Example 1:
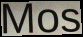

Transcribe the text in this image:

Mos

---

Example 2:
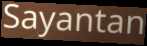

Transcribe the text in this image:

Sayantan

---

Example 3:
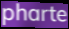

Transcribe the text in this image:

pharte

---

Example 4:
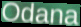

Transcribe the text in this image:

Odana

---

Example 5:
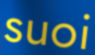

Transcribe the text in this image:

suoi